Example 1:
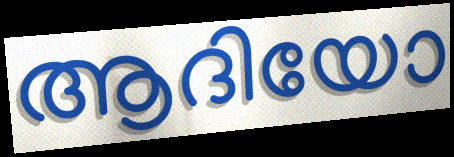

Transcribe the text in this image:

ആദിയോ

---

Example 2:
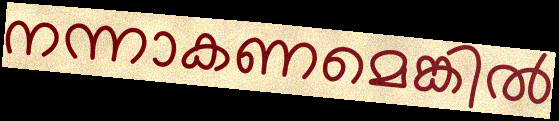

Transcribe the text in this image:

നന്നാകണമെങ്കിൽ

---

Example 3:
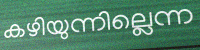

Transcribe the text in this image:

കഴിയുന്നില്ലെന്ന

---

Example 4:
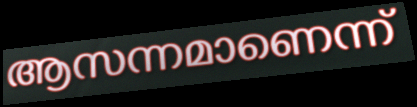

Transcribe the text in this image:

ആസന്നമാണെന്ന്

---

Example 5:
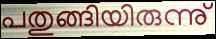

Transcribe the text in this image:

പതുങ്ങിയിരുന്നു്